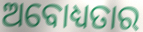
ଅବୋଧ୍ୟତାର